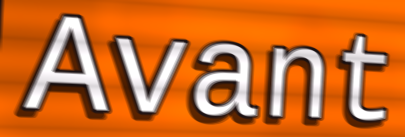
Avant